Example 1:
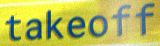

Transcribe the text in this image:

takeoff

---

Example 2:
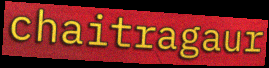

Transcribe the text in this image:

chaitragaur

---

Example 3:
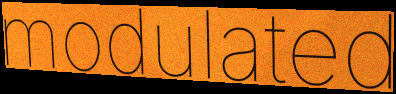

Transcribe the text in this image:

modulated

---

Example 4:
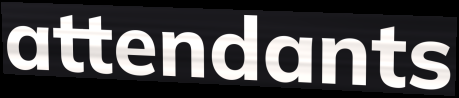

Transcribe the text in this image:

attendants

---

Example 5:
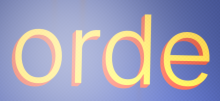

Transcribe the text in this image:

orde